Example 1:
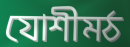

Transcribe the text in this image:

যোশীমঠ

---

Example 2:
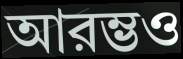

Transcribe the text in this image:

আরম্ভও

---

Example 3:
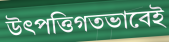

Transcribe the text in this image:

উৎপত্তিগতভাবেই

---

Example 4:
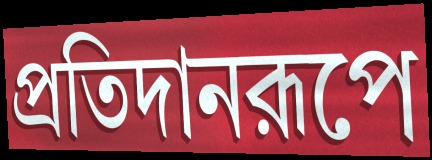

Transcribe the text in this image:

প্রতিদানরূপে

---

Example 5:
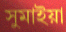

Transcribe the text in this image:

সুমাইয়া